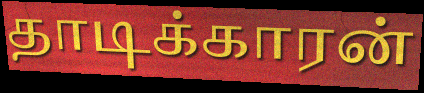
தாடிக்காரன்